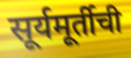
सूर्यमूर्तीची